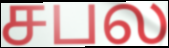
சபல